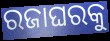
ରଜାଘରକୁ